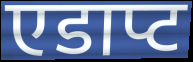
एडाप्ट